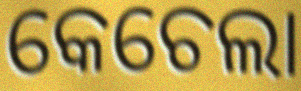
କେଚେଲା